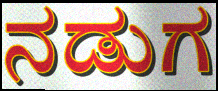
ನಡುಗ